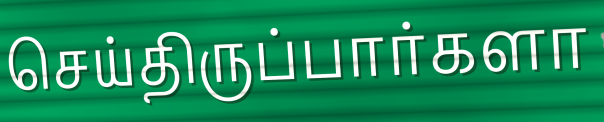
செய்திருப்பார்களா